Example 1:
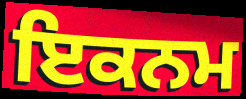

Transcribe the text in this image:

ਇਕਨਮ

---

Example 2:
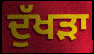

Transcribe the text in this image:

ਦੁੱਖਡ਼ਾ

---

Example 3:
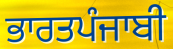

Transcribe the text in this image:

ਭਾਰਤਪੰਜਾਬੀ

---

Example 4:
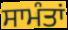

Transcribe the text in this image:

ਸਾਮੰਤਾਂ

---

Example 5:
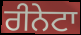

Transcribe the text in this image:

ਰੀਨੇਟਾ